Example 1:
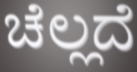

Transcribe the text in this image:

ಚೆಲ್ಲದೆ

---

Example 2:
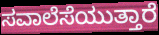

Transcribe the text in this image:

ಸವಾಲೆಸೆಯುತ್ತಾರೆ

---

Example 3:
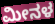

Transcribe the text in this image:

ಮೀನಳ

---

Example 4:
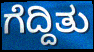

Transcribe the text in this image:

ಗೆದ್ದಿತು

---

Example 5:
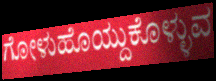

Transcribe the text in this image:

ಗೋಳುಹೊಯ್ದುಕೊಳ್ಳುವ